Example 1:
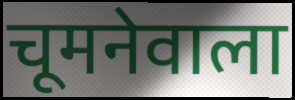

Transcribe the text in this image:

चूमनेवाला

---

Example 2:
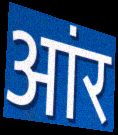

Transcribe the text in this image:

आंर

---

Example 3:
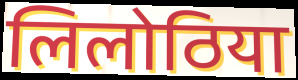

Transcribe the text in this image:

लिलोठिया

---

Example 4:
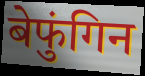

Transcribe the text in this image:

बेफुंगिन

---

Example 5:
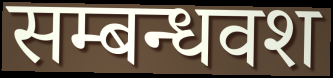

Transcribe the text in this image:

सम्बन्धवश